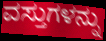
ವಸ್ತುಗಳನ್ನು